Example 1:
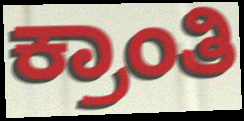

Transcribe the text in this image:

ಕ್ರಾಂತಿ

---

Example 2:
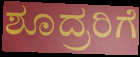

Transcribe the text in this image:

ಶೂದ್ರರಿಗೆ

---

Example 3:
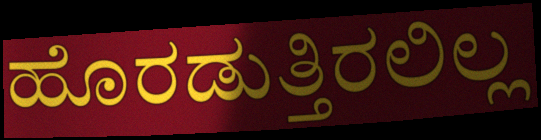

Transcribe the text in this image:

ಹೊರಡುತ್ತಿರಲಿಲ್ಲ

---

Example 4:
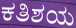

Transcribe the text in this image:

ಕತಿಶಯ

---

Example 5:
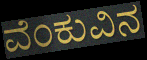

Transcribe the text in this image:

ವೆಂಕುವಿನ